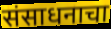
संसाधनाचा